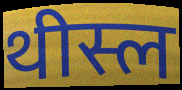
थीस्ल